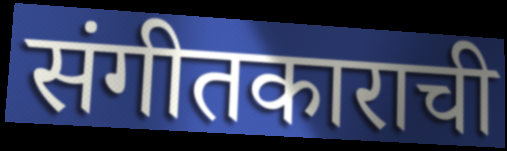
संगीतकाराची